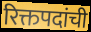
रिक्तपदांची